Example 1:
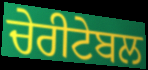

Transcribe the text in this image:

ਚੇਰੀਟੇਬਲ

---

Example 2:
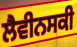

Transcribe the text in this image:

ਲੈਵੀਨਸਕੀ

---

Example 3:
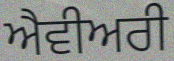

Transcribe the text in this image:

ਐਵੀਅਰੀ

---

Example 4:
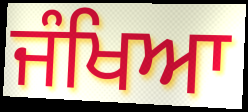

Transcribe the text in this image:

ਜੰਖਿਆ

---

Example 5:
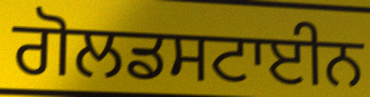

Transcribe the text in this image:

ਗੋਲਡਸਟਾਈਨ